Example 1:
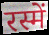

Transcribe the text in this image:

रस्‍में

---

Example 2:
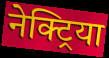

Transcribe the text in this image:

नेक्ट्रिया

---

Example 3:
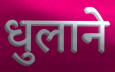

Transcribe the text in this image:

धुलाने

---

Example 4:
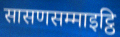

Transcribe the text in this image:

सासणसम्माइट्ठि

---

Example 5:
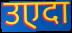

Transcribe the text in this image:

उएदा